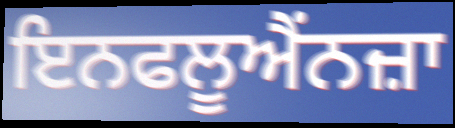
ਇਨਫਲੂਐਂਨਜ਼ਾ